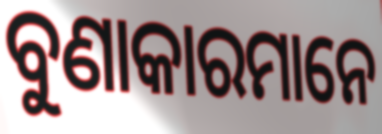
ବୁଣାକାରମାନେ